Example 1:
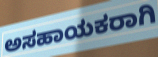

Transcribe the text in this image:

ಅಸಹಾಯಕರಾಗಿ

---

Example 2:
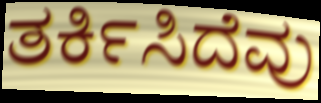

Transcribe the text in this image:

ತರ್ಕಿಸಿದೆವು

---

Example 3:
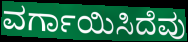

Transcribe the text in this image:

ವರ್ಗಾಯಿಸಿದೆವು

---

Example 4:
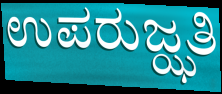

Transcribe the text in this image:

ಉಪರುಜ್ಝತಿ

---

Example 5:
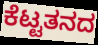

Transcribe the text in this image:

ಕೆಟ್ಟತನದ